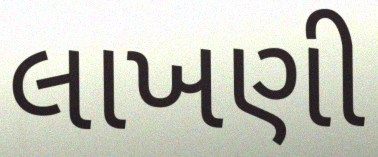
લાખણી